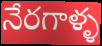
నేరగాళ్ళ